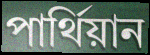
পার্থিয়ান